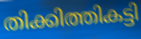
തിക്കിത്തികട്ടി